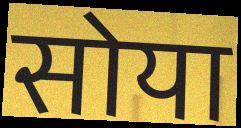
सोया